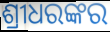
ଶ୍ରୀଧରଙ୍କର